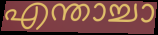
എന്താച്ചാ